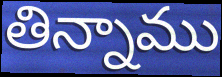
తిన్నాము